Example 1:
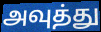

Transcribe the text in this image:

அவுத்து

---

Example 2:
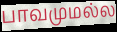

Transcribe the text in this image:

பாவமுமல்ல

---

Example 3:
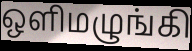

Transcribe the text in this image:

ஒளிமழுங்கி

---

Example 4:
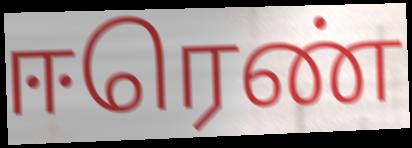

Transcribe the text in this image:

ஈரெண்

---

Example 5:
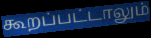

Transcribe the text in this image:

கூறப்பட்டாலும்